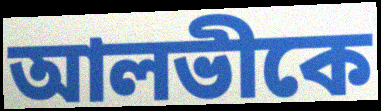
আলভীকে